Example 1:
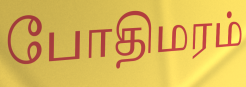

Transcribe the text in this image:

போதிமரம்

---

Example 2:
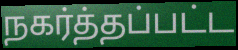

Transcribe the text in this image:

நகர்த்தப்பட்ட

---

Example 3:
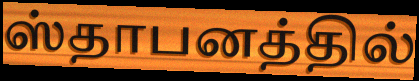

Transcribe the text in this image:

ஸ்தாபனத்தில்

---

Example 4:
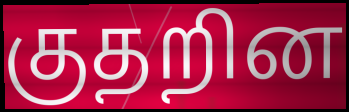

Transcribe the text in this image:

குதறின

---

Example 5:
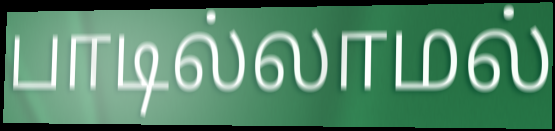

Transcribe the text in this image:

பாடில்லாமல்